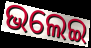
ଭଲେଇ